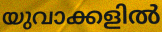
യുവാക്കളിൽ